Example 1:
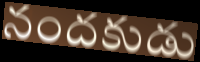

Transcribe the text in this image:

నందకుడు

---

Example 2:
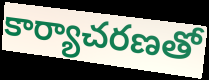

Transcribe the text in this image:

కార్యాచరణతో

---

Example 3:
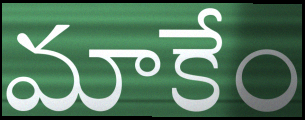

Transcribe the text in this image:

మాకేం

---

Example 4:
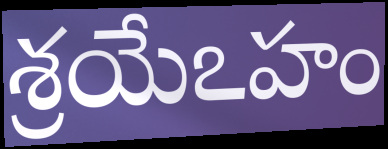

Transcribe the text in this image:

శ్రయేఽహం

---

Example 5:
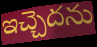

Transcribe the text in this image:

ఇచ్చెదను